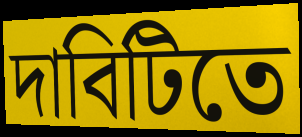
দাবিটিতে